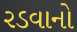
રડવાનો